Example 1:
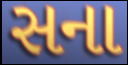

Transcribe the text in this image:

સના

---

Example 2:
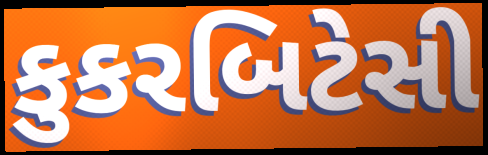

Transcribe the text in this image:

કુકરબિટેસી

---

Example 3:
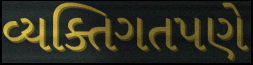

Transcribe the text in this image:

વ્યક્તિગતપણે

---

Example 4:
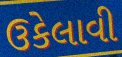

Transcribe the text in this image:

ઉકેલાવી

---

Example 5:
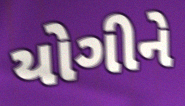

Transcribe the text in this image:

યોગીને